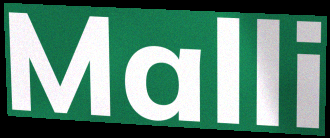
Malli